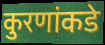
कुरणांकडे